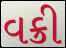
વક્રી